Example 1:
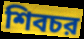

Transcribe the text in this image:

শিবচর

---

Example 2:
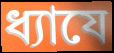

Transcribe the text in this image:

ধ্যাযে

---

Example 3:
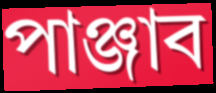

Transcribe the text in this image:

পাঞ্জাব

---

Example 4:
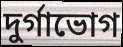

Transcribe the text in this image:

দুর্গাভোগ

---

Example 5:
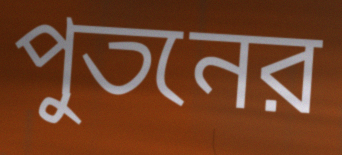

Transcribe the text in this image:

পুতনের